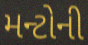
મન્ટોની